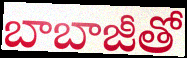
బాబాజీతో